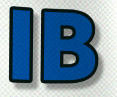
IB